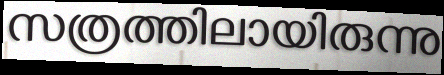
സത്രത്തിലായിരുന്നു